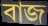
বাজ